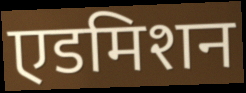
एडमिशन